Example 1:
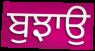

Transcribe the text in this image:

ਬੁਝਾਉ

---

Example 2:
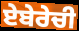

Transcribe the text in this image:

ਏਬੇਰੇਚੀ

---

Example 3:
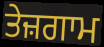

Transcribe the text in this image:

ਤੇਜ਼ਗਾਮ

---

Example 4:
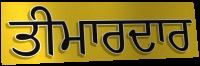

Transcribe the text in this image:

ਤੀਮਾਰਦਾਰ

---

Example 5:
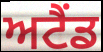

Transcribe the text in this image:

ਅਟੈਂਡ